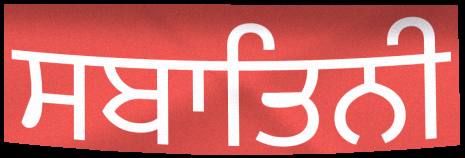
ਸਬਾਤਿਨੀ